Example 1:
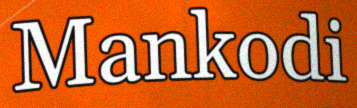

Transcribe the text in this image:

Mankodi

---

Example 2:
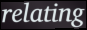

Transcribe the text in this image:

relating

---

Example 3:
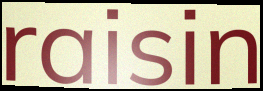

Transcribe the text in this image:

raisin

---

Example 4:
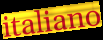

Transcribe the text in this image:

italiano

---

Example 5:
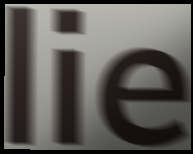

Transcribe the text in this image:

lie